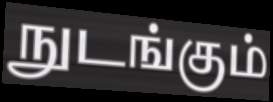
நுடங்கும்